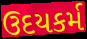
ઉદયકર્મ